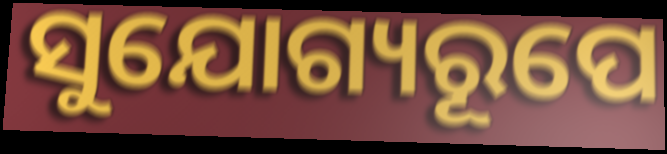
ସୁଯୋଗ୍ୟରୂପେ